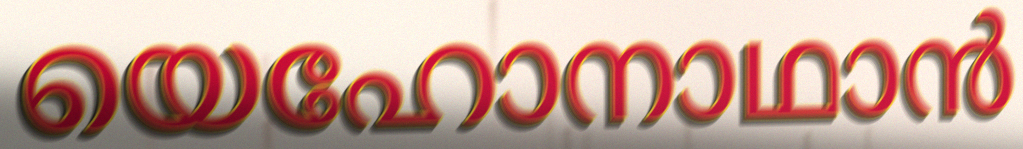
യെഹോനാഥാൻ